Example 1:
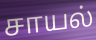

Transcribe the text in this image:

சாயல்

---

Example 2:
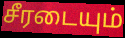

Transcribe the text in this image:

சீரடையும்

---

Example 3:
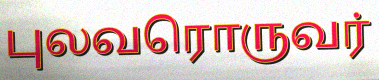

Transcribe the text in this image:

புலவரொருவர்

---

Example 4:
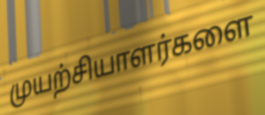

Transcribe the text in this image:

முயற்சியாளர்களை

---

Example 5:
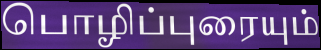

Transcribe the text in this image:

பொழிப்புரையும்